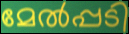
മേൽപ്പടി